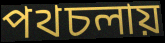
পথচলায়